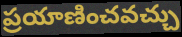
ప్రయాణించవచ్చు